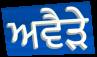
ਅਵੈੜੇ